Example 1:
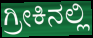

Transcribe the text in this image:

ಗ್ರೀಕಿನಲ್ಲಿ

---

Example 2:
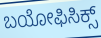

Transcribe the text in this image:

ಬಯೋಫಿಸಿಕ್ಸ್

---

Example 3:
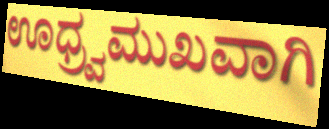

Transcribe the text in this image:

ಊಧ್ರ್ವಮುಖವಾಗಿ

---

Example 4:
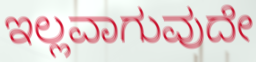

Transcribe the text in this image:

ಇಲ್ಲವಾಗುವುದೇ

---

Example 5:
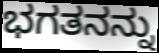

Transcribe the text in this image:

ಭಗತನನ್ನು